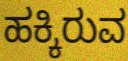
ಹಕ್ಕಿರುವ